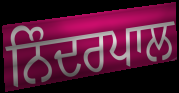
ਨਿੰਦਰਪਾਲ